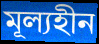
মূল্যহীন